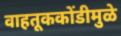
वाहतूककोंडीमुळे